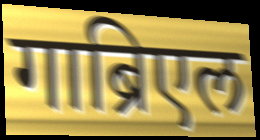
गाब्रिएल